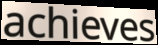
achieves